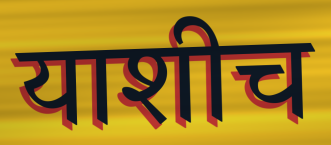
याशीच